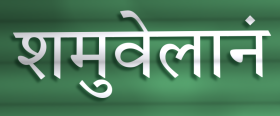
शमुवेलानं